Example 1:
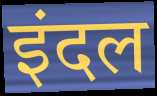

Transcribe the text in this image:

इंदल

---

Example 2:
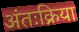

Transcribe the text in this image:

अंतःक्रिया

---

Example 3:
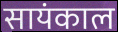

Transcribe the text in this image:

सायंकाल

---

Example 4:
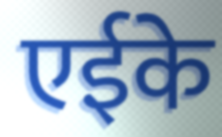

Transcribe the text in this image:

एईके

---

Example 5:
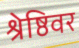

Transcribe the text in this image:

श्रेष्ठिवर